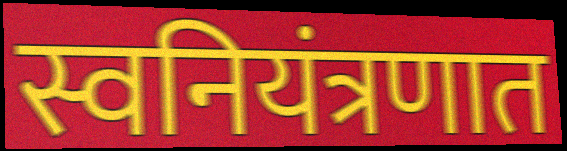
स्वनियंत्रणात